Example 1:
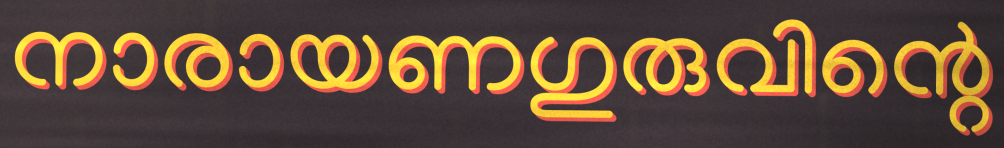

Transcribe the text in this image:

നാരായണഗുരുവിന്റെ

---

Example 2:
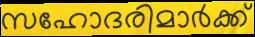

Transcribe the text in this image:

സഹോദരിമാർക്ക്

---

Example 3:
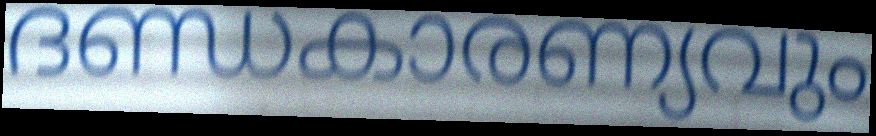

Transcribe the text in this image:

ദണ്ഡകാരണ്യവും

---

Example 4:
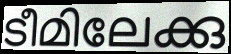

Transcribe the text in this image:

ടീമിലേക്കു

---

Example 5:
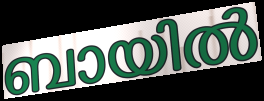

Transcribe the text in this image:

ബായിൽ